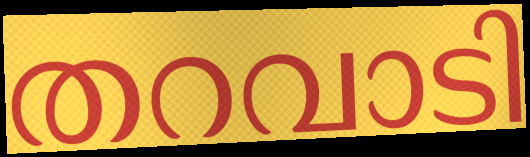
തറവാടി